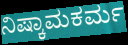
ನಿಷ್ಕಾಮಕರ್ಮ